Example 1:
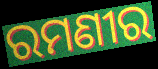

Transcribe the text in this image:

ରମଣୀର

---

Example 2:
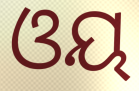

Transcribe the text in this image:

ଓୟ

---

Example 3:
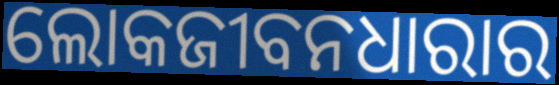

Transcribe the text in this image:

ଲୋକଜୀବନଧାରାର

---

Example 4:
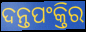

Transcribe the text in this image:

ଦନ୍ତପଂକ୍ତିର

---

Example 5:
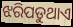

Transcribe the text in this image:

ଝରିପଡୁଥାଏ